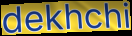
dekhchi